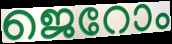
ജെറോം